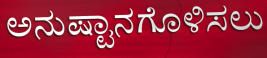
ಅನುಷ್ಟಾನಗೊಳಿಸಲು